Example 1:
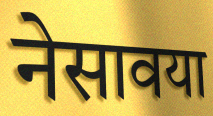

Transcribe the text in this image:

नेसावया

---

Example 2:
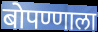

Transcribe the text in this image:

बोपण्णाला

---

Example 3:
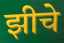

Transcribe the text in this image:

झीचे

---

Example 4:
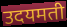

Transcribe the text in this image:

उदयमती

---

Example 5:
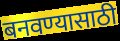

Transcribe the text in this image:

बनवण्‍यासाठी